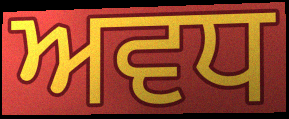
ਅਵਧ